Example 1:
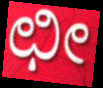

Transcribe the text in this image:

ಛೀ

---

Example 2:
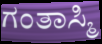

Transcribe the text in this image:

ಗಂತಾಸ್ಮಿ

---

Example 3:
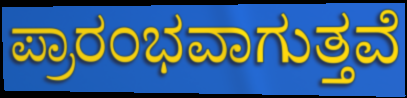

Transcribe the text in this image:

ಪ್ರಾರಂಭವಾಗುತ್ತವೆ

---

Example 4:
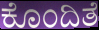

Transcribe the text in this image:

ಕೊಂದಿತೆ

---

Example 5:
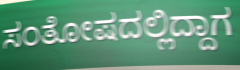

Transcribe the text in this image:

ಸಂತೋಷದಲ್ಲಿದ್ದಾಗ